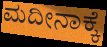
ಮದೀನಾಕ್ಕೆ